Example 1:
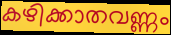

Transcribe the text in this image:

കഴിക്കാതവണ്ണം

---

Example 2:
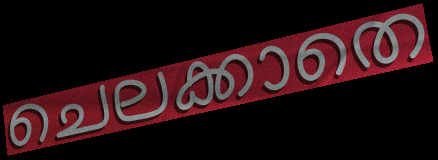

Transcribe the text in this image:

ചെലക്കാതെ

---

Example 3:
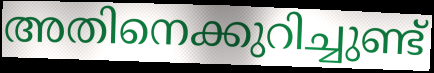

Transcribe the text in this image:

അതിനെക്കുറിച്ചുണ്ട്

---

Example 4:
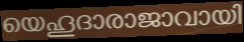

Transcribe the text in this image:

യെഹൂദാരാജാവായി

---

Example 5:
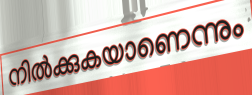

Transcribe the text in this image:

നിൽക്കുകയാണെന്നും